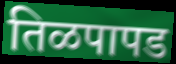
तिळपापड